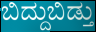
ಬಿದ್ದುಬಿಡ್ತು